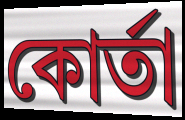
কোর্তা